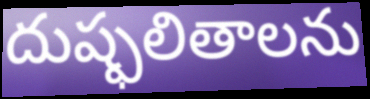
దుష్ఫలితాలను